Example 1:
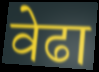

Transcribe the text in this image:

वेढा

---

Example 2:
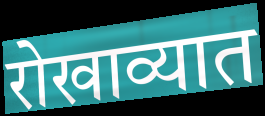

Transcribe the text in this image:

रोखाव्यात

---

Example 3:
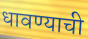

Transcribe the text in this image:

धावण्याची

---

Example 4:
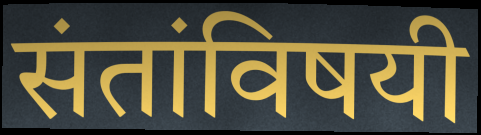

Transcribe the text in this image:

संतांविषयी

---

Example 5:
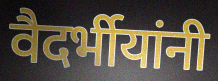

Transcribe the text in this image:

वैदर्भीयांनी